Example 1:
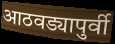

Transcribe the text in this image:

आठवड्यापुर्वी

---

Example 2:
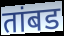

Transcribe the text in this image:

तांबड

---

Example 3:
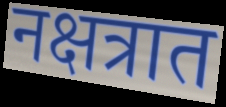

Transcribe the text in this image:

नक्षत्रात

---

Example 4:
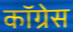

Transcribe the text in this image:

कॉग्रेस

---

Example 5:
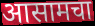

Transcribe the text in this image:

आसामचा